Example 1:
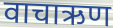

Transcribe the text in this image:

वाचाऋण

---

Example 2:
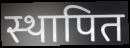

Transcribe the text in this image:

स्थापित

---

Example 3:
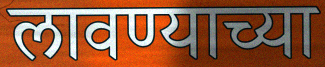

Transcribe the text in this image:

लावण्याच्या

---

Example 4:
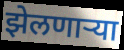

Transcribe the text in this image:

झेलणाऱ्या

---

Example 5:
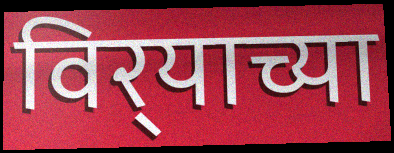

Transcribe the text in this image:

विर्‍याच्या